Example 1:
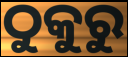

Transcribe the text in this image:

ଠୁକୁରୁ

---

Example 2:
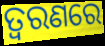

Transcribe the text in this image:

ତ୍ଵରଣରେ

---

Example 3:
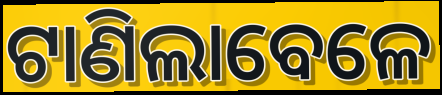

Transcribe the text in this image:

ଟାଣିଲାବେଳେ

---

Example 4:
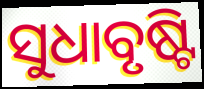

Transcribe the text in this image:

ସୁଧାବୃଷ୍ଟି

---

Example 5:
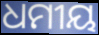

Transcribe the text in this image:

ଧମୀୟ